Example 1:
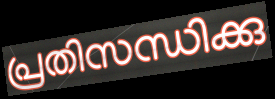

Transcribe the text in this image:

പ്രതിസന്ധിക്കു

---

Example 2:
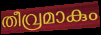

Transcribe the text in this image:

തീവ്രമാകും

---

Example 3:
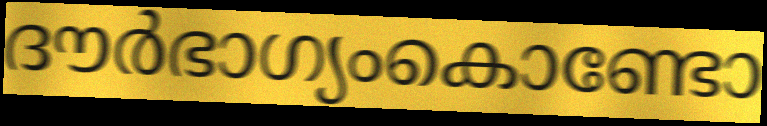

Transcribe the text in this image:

ദൗർഭാഗ്യംകൊണ്ടോ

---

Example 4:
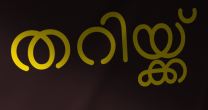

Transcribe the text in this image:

തറിയ്ക്ക്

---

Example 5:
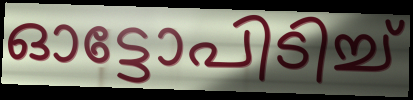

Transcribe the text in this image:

ഓട്ടോപിടിച്ച്